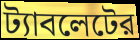
ট্যাবলেটের